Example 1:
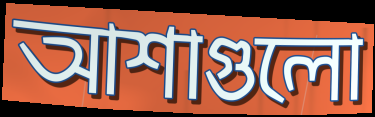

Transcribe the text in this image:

আশাগুলো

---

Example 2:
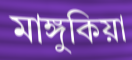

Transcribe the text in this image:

মাঙ্গুকিয়া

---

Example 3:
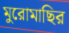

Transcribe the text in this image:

মুরোমাছির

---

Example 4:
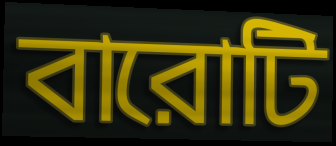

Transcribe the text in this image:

বারোটি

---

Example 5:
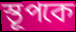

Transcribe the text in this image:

স্তূপকে